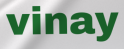
vinay